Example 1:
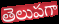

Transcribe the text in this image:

తెలుపగా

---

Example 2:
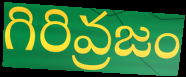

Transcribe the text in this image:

గిరివ్రజం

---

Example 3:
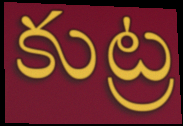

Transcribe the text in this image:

కుట్ర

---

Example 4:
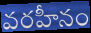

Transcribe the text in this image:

వరహీనం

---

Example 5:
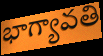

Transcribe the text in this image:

భాగ్యావతి